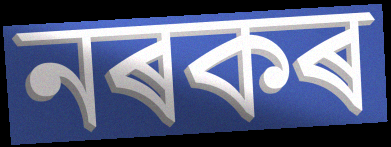
নৰকৰ